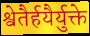
श्वेतैर्हयैर्युक्ते